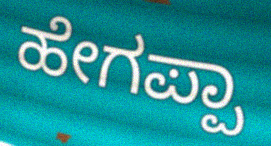
ಹೇಗಪ್ಪಾ